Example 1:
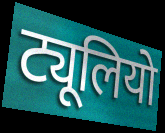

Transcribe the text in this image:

ट्यूलियो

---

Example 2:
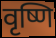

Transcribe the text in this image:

वृष्णि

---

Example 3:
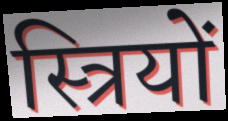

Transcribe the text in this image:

स्‍त्रियों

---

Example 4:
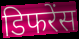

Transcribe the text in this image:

डिफरेंस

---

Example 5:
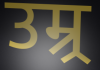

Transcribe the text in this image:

उम्र्र